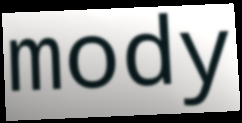
mody